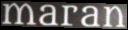
maran